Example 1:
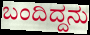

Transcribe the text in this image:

ಬಂದಿದ್ದನು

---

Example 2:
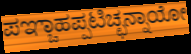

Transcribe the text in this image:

ಪಞ್ಚಾಹಪ್ಪಟಿಚ್ಛನ್ನಾಯೋ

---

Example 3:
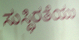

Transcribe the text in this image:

ಸುಸ್ಥಿರತೆಯು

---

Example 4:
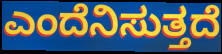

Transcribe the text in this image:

ಎಂದೆನಿಸುತ್ತದೆ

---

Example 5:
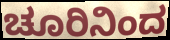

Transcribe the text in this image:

ಚೂರಿನಿಂದ